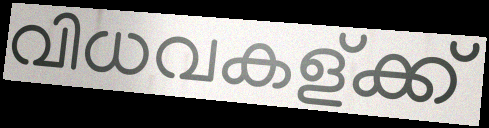
വിധവകള്ക്ക്